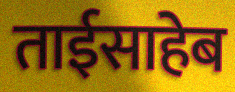
ताईसाहेब